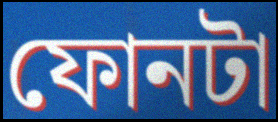
ফোনটা